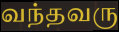
வந்தவரு